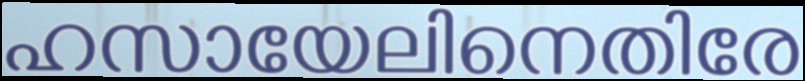
ഹസായേലിനെതിരേ